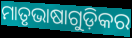
ମାତୃଭାଷାଗୁଡ଼ିକର